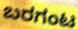
ಬರಗಂಟ